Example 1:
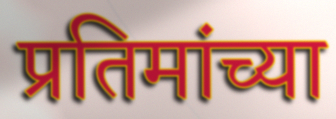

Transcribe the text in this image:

प्रतिमांच्या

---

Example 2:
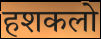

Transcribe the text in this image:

हशकलो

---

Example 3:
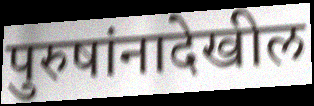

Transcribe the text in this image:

पुरुषांनादेखील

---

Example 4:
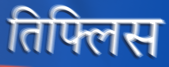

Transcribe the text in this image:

तिफ्लिस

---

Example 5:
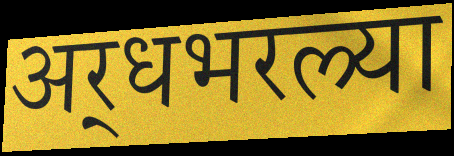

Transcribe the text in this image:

अर्धभरल्या